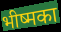
भीष्मका